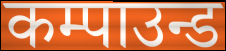
कम्पाउन्ड